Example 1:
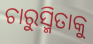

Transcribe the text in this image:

ଚାରୁସ୍ମିତାକୁ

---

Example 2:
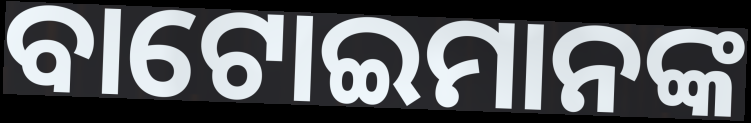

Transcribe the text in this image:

ବାଟୋଇମାନଙ୍କ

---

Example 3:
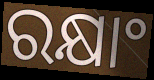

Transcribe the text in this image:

ରକ୍ଷାଂ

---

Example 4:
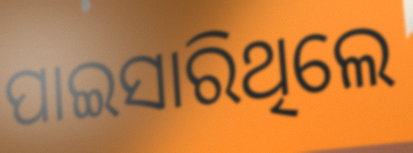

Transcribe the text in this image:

ପାଇସାରିଥିଲେ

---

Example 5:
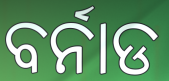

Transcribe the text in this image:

ବର୍ନାଡ